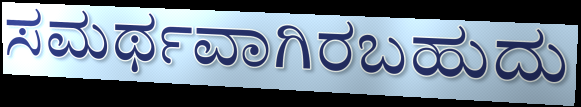
ಸಮರ್ಥವಾಗಿರಬಹುದು